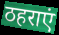
ठहराएं